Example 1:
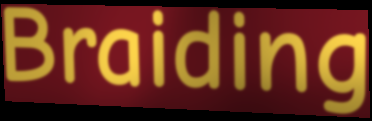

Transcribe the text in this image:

Braiding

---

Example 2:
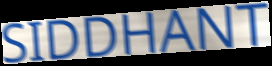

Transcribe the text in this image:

SIDDHANT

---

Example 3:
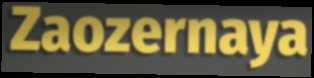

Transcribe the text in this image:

Zaozernaya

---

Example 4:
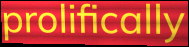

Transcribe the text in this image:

prolifically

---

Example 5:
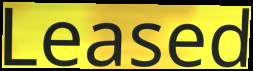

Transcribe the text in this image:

Leased